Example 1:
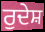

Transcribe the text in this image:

ਰੁਦੇਸ਼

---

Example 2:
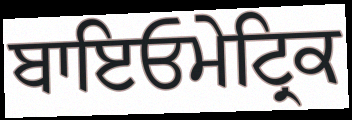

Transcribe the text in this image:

ਬਾਇਓਮੇਟ੍ਰਿਕ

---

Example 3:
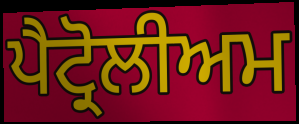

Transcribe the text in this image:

ਪੈਟ੍ਰੋਲੀਅਮ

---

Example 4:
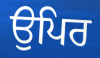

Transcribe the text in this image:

ਉਪਿਰ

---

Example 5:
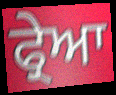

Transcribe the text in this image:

ਫ੍ਰੇਆ